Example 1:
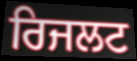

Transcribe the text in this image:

ਰਿਜਲਟ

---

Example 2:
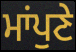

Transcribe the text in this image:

ਮਾਂਪੁਣੇ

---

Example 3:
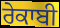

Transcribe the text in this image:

ਰੇਕਾਬੀ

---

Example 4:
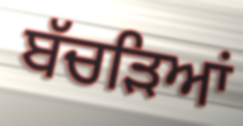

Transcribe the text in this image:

ਬੱਚੜਿਆਂ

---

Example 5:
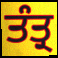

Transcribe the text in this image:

ਤੰਤ੍ਰ